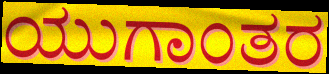
ಯುಗಾಂತರ